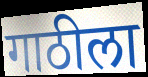
गाठीला